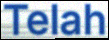
Telah